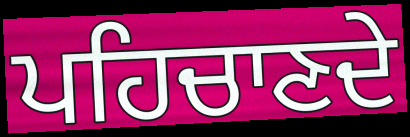
ਪਹਿਚਾਣਦੇ